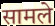
सामले